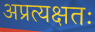
अप्रत्यक्षतः